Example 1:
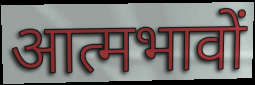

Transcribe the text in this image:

आत्मभावों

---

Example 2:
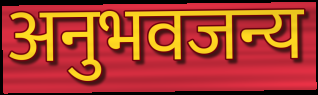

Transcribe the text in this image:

अनुभवजन्य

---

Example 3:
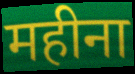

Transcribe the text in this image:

महीना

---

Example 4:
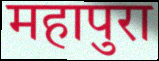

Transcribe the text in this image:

महापुरा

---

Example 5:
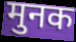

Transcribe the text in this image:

मुनक